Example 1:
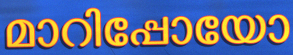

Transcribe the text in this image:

മാറിപ്പോയോ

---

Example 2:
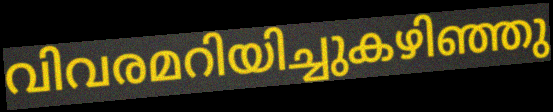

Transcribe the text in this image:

വിവരമറിയിച്ചുകഴിഞ്ഞു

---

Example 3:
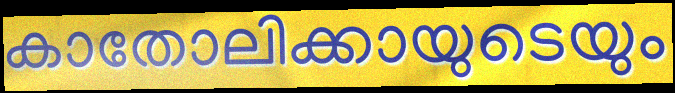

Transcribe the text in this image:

കാതോലിക്കായുടെയും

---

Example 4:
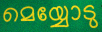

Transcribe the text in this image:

മെയ്യോടു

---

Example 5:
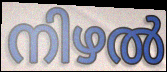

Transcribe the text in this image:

നിഴൽ